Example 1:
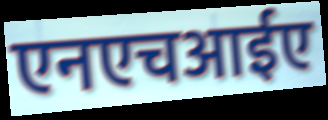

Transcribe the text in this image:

एनएचआईए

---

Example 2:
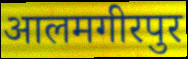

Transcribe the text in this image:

आलमगीरपुर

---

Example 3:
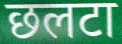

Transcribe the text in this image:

छलटा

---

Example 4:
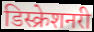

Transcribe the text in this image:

डिस्क्रेशनरी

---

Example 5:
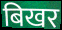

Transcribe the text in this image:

बिखर